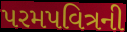
પરમપવિત્રની